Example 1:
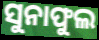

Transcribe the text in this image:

ସୁନାଫୁଲ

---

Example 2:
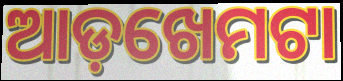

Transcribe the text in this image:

ଆଡ଼ଖେମଟା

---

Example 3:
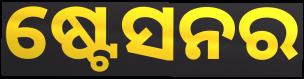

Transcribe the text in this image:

ଷ୍ଟେସନର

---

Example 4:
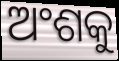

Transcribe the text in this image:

ଅଂଶକୁ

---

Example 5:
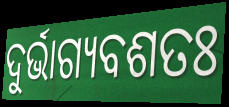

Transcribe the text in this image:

ଦୁର୍ଭାଗ୍ୟବଶତଃ